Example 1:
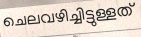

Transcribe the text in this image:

ചെലവഴിച്ചിട്ടുള്ളത്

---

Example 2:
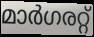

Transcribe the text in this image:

മാർഗരറ്റ്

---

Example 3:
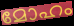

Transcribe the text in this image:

മോഹം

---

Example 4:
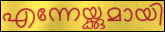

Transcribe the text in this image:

എന്നേയ്ക്കുമായി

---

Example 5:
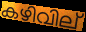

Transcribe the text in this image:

കഴിവില്